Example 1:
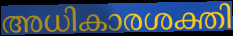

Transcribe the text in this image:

അധികാരശക്തി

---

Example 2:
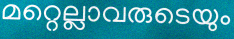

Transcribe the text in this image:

മറ്റെല്ലാവരുടെയും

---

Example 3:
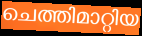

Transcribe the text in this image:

ചെത്തിമാറ്റിയ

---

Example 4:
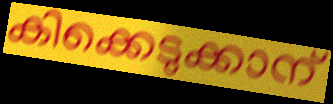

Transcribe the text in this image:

കിക്കെടുക്കാന്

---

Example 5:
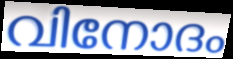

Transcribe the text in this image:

വിനോദം